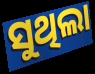
ସୁଥିଲା